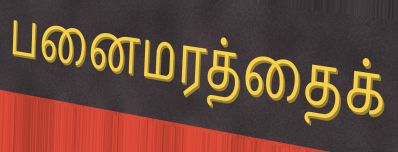
பனைமரத்தைக்